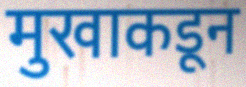
मुखाकडून